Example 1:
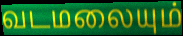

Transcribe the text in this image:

வடமலையும்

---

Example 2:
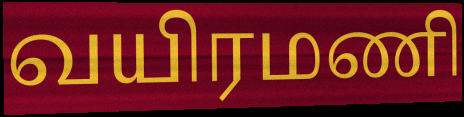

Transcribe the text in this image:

வயிரமணி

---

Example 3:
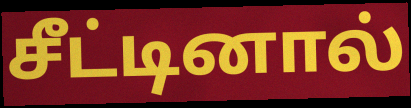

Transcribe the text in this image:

சீட்டினால்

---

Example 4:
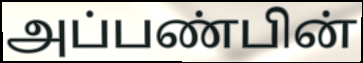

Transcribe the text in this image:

அப்பண்பின்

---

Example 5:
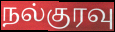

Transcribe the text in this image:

நல்குரவு